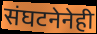
संघटनेनेही